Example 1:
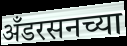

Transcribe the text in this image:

अँडरसनच्या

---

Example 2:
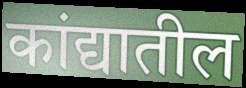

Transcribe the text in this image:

कांद्यातील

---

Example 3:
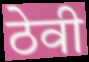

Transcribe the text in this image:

ठेवी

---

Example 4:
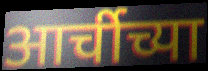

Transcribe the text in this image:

आर्चीच्या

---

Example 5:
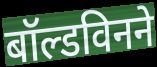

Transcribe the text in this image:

बॉल्डविनने